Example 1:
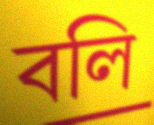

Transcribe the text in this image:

বলি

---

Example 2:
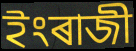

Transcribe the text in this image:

ইংৰাজী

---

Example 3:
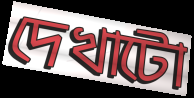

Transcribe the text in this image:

দেখাটো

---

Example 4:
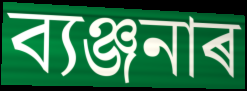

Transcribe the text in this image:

ব্যঞ্জনাৰ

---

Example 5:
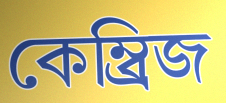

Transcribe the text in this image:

কেম্ব্ৰিজ